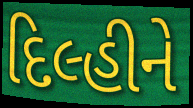
દિલ્હીને